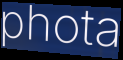
phota